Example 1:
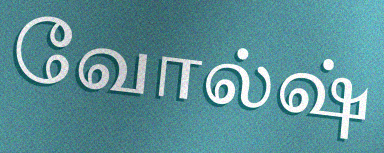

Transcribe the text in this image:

வோல்ஷ்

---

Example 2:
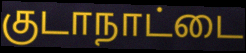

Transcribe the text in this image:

குடாநாட்டை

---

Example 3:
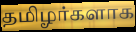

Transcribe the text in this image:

தமிழர்களாக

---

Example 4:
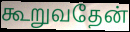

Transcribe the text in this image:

கூறுவதேன்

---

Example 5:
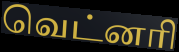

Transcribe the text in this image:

வெட்னரி